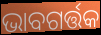
ଭାବଗର୍ତ୍ତକ